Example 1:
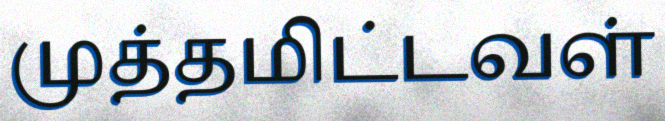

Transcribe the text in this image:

முத்தமிட்டவள்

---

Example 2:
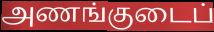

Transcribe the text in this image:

அணங்குடைப்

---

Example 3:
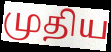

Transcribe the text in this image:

முதிய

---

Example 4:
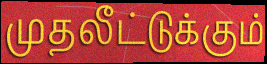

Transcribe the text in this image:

முதலீட்டுக்கும்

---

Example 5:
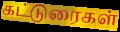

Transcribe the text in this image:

கட்டுரைகள்